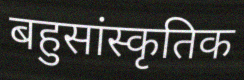
बहुसांस्कृतिक